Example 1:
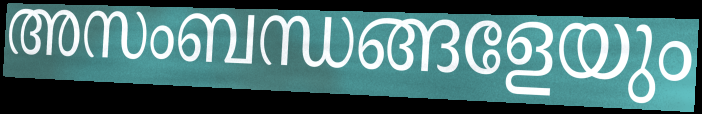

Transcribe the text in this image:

അസംബന്ധങ്ങളേയും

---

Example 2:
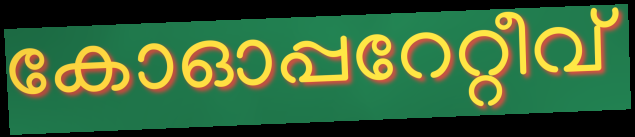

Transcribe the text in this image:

കോഓപ്പറേറ്റീവ്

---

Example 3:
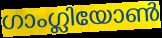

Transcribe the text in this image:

ഗാംഗ്ലിയോൺ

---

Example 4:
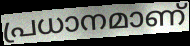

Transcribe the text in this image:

പ്രധാനമാണ്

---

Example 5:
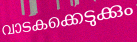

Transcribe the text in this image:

വാടകക്കെടുക്കും